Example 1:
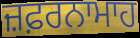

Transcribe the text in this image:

ਜ਼ਫ਼ਰਨਾਮਾਹ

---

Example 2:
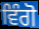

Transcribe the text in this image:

ਵਿੰਗੋ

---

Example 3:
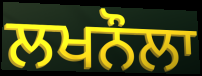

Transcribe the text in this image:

ਲਖਨੌਲਾ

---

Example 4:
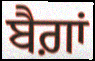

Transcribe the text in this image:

ਬੈਗ਼ਾਂ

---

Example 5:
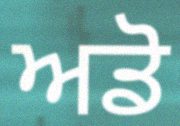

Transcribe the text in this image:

ਅਡੋ